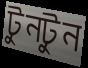
টুনটুন